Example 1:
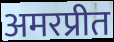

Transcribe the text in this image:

अमरप्रीत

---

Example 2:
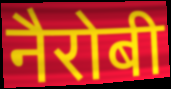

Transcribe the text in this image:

नैरोबी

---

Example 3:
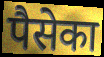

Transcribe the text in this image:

पैसेका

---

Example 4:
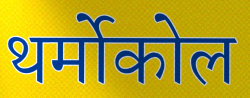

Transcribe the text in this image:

थर्मोकोल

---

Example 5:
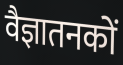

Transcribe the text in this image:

वैज्ञातनकों